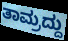
ತಾಮ್ರದ್ದು